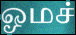
ஓமச்